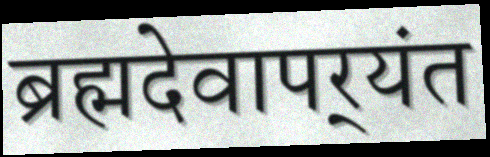
ब्रह्मदेवापर्यंत